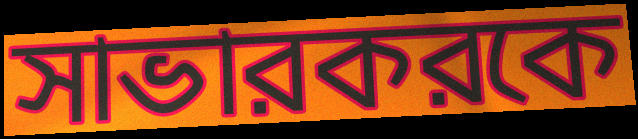
সাভারকরকে